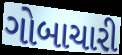
ગોબાચારી